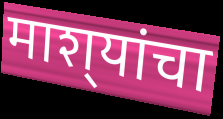
माश्यांचा